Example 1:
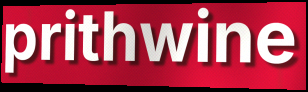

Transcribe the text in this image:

prithwine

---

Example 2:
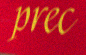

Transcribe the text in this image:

prec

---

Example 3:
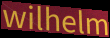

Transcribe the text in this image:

wilhelm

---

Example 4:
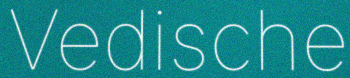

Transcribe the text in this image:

Vedische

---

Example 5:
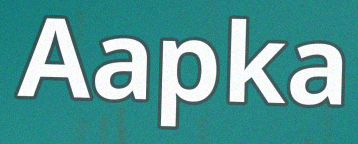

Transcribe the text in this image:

Aapka